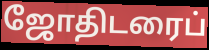
ஜோதிடரைப்